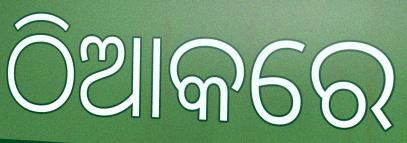
ଠିଆକରେ